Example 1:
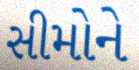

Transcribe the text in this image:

સીમોને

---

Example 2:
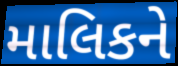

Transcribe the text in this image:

માલિકને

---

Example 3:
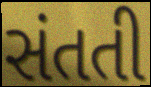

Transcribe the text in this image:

સંતતી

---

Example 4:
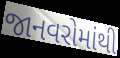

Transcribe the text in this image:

જાનવરોમાંથી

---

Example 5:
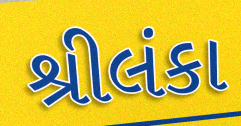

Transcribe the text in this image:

શ્રીલંકા